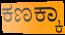
ಕಣಕ್ಕಾ